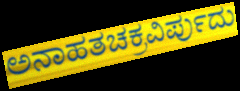
ಅನಾಹತಚಕ್ರವಿರ್ಪುದು